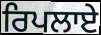
ਰਿਪਲਾਏ